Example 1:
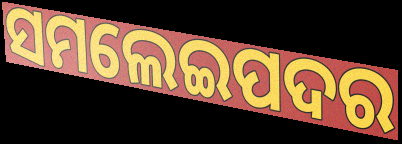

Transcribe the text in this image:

ସମଲେଇପଦର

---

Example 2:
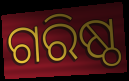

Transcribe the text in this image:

ଗରିଷ୍ଠ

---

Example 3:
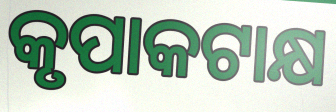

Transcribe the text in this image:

କୃପାକଟାକ୍ଷ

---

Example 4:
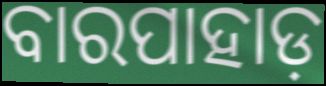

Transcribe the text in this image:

ବାରପାହାଡ଼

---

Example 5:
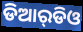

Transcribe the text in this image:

ଡିଆର୍‌ଡିଓ